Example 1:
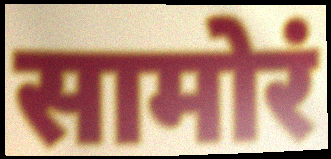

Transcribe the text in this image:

सामोरं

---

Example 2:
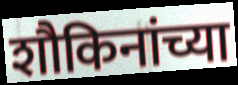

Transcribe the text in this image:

शौकिनांच्या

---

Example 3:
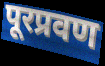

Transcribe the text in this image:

पूरप्रवण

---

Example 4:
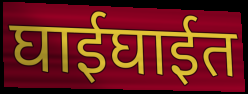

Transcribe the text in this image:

घाईघाईत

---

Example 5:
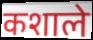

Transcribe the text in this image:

कशाले